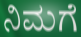
ನಿಮಗೆ